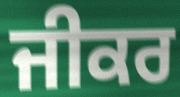
ਜੀਕਰ